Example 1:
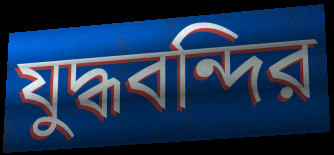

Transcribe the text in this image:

যুদ্ধবন্দির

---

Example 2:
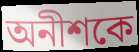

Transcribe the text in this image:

অনীশকে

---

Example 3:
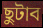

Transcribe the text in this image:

ছুটাব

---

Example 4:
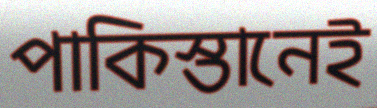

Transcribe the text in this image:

পাকিস্তানেই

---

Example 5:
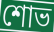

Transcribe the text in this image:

শোভ